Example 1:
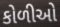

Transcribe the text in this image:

કોળીઓ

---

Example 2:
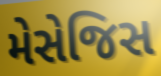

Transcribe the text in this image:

મેસેજિસ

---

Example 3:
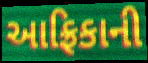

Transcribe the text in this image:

આફ્રિકાની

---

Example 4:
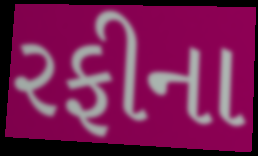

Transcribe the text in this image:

રફીના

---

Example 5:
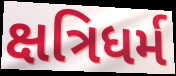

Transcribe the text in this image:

ક્ષત્રિધર્મ